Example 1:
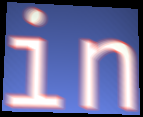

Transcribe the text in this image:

in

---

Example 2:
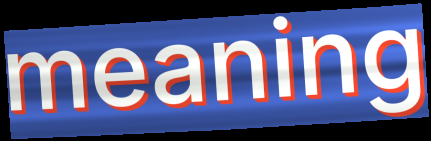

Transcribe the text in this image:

meaning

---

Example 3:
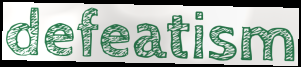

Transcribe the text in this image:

defeatism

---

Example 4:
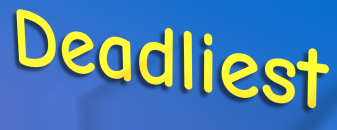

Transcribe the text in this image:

Deadliest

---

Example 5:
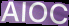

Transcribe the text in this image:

AIOC